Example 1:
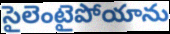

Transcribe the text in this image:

సైలెంటైపోయాను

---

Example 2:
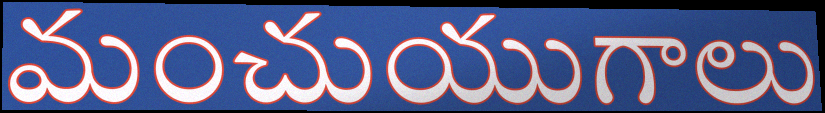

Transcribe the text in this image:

మంచుయుగాలు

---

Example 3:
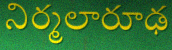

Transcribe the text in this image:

నిర్మలారూఢ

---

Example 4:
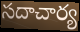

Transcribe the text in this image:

సదాచార్య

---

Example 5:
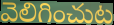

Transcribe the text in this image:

వెలిగించుట